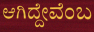
ಆಗಿದ್ದೇವೆಂಬ